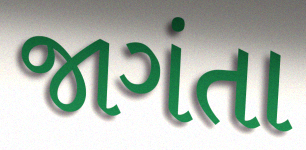
જાગંતા